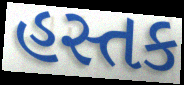
હસ્તક